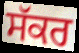
ਸੱਕਰ